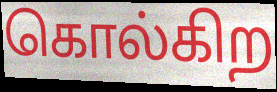
கொல்கிற